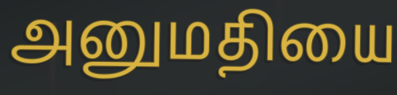
அனுமதியை